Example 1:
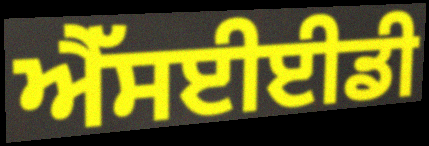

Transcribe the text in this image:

ਐੱਸਈਈਡੀ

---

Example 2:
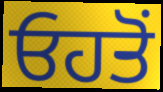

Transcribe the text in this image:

ਓਹਤੋਂ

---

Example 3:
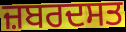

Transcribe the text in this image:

ਜ਼ਬਰਦਸਤ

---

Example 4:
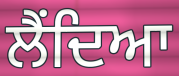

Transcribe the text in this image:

ਲੈਂਦਿਆ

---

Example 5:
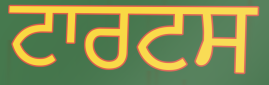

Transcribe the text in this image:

ਟਾਰਟਸ